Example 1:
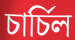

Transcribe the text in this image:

চার্চিল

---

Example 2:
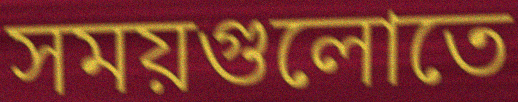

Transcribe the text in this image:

সময়গুলোতে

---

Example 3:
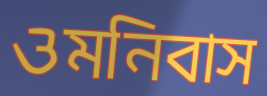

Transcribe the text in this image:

ওমনিবাস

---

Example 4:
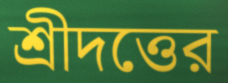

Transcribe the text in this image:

শ্রীদত্তের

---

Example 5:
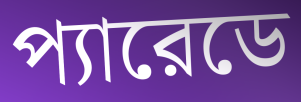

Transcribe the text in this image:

প্যারেডে